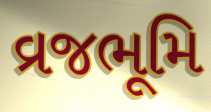
વ્રજભૂમિ